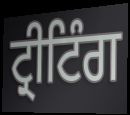
ਟ੍ਰੀਟਿੰਗ